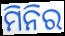
ମିନିର